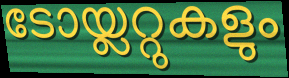
ടോയ്ലറ്റുകളും